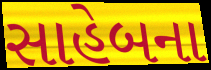
સાહેબના